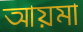
আয়মা